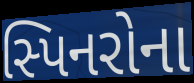
સ્પિનરોના